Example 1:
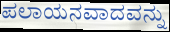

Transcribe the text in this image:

ಪಲಾಯನವಾದವನ್ನು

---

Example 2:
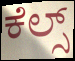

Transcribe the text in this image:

ಕೆಲ್ಸ್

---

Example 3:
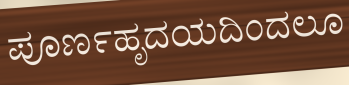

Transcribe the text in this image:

ಪೂರ್ಣಹೃದಯದಿಂದಲೂ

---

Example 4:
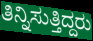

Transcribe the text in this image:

ತಿನ್ನಿಸುತ್ತಿದ್ದರು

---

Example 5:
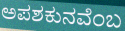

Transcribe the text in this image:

ಅಪಶಕುನವೆಂಬ